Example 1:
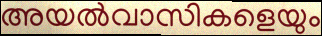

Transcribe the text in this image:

അയൽവാസികളെയും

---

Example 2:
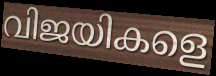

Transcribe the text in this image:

വിജയികളെ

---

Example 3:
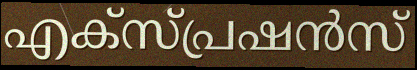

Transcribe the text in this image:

എക്സ്പ്രഷൻസ്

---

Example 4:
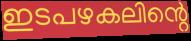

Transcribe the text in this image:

ഇടപഴകലിന്റെ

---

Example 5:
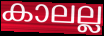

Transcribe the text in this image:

കാലല്ല